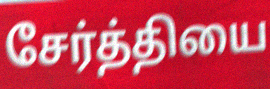
சேர்த்தியை